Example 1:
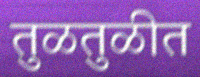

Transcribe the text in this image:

तुळतुळीत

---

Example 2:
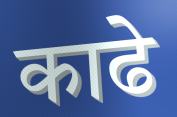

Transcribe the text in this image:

काढे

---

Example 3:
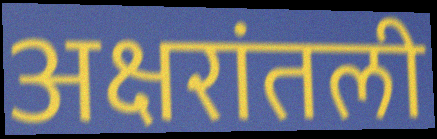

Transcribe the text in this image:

अक्षरांतली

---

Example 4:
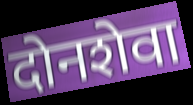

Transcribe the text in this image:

दोनशेवा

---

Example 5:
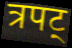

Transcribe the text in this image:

त्रपट्